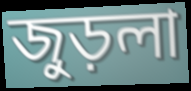
জুড়লা